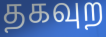
தகவுற